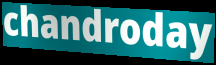
chandroday